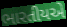
ભારતીયએ